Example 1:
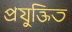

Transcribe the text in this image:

প্ৰযুক্তিত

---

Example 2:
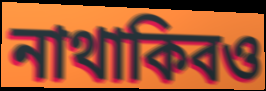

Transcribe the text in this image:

নাথাকিবও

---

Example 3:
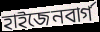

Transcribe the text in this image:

হাইজেনবাৰ্গ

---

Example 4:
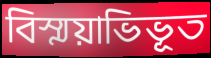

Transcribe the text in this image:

বিস্ময়াভিভূত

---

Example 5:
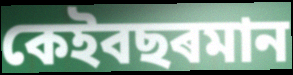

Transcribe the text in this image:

কেইবছৰমান